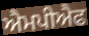
ਐਮਪੀਐਫ